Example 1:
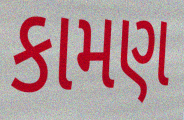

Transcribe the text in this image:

કામણ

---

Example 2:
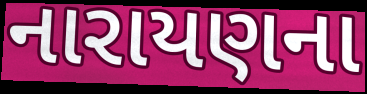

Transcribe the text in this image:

નારાયણના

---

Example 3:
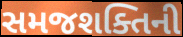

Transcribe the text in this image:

સમજશક્તિની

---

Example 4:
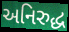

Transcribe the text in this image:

અનિરુદ્ધ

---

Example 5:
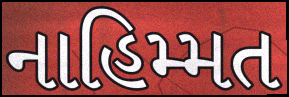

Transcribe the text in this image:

નાહિમ્મત